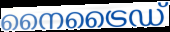
നൈട്രൈഡ്